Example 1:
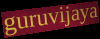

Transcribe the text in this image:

guruvijaya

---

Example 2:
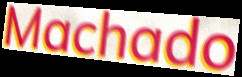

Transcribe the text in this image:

Machado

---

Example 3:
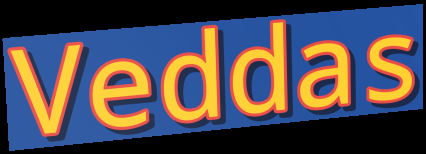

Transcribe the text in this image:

Veddas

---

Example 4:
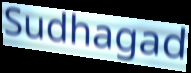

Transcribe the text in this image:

Sudhagad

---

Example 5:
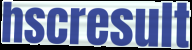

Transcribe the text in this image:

hscresult